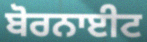
ਬੋਰਨਾਈਟ